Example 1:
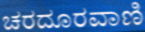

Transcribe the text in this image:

ಚರದೂರವಾಣಿ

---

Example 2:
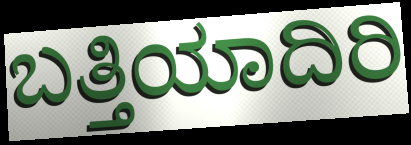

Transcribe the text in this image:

ಬತ್ತಿಯಾದಿರಿ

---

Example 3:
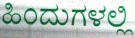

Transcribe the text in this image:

ಹಿಂದುಗಳಲ್ಲಿ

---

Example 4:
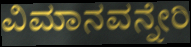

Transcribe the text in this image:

ವಿಮಾನವನ್ನೇರಿ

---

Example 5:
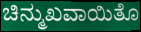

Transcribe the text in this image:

ಚಿನ್ಮುಖವಾಯಿತೊ